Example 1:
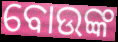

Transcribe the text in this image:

ବୋଉଙ୍କ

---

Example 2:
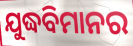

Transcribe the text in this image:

ଯୁଦ୍ଧବିମାନର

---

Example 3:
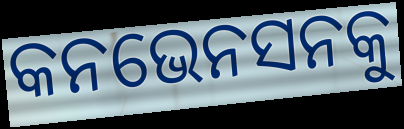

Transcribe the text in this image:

କନଭେନସନକୁ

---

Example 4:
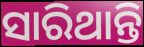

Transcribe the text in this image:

ସାରିଥାନ୍ତି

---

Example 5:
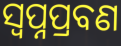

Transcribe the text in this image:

ସ୍ଵପ୍ନପ୍ରବଣ